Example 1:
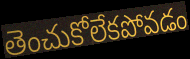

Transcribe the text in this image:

తెంచుకోలేకపోవడం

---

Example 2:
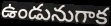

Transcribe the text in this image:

ఉండునుగాక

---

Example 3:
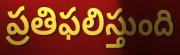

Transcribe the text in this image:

ప్రతిఫలిస్తుంది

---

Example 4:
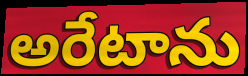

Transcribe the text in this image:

అరేటాను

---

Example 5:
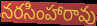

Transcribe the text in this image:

నరసింహారావు